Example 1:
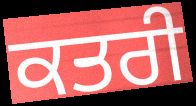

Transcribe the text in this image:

ਕਤਰੀ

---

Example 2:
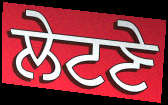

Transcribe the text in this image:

ਲੇਟਣੇ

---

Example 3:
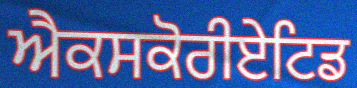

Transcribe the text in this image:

ਐਕਸਕੋਰੀਏਟਿਡ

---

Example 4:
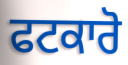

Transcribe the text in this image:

ਫਟਕਾਰੋ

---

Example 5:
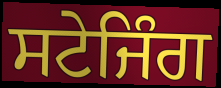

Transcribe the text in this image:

ਸਟੇਜਿੰਗ